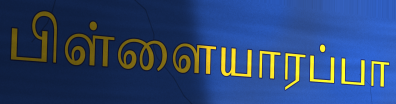
பிள்ளையாரப்பா